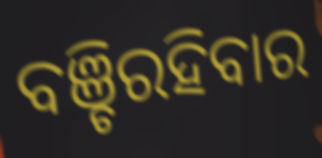
ବଞ୍ଚିରହିବାର